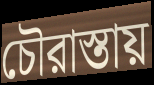
চৌরাস্তায়